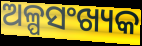
ଅଳ୍ପସଂଖ୍ୟକ